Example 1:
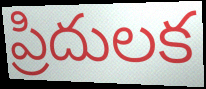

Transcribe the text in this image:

ప్రిదులక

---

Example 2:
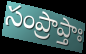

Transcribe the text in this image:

సంప్రాప్తాః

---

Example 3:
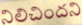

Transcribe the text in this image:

నిలిచిందని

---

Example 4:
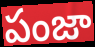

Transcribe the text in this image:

పంజా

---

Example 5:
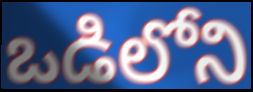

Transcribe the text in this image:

ఒడిలోని